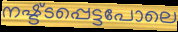
നഷ്ട്ടപ്പെട്ടപോലെ